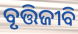
ବୃତ୍ତିଜୀବି